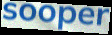
sooper